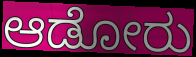
ಆಡೋರು